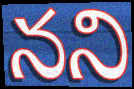
నని